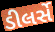
ડીલર્સે